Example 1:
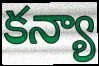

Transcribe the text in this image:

కన్యా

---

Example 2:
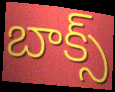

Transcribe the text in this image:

బాక్స్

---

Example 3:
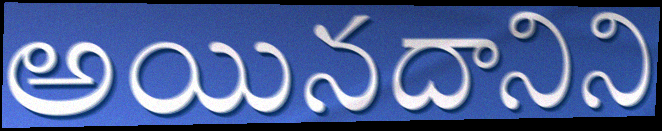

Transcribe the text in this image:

అయినదానిని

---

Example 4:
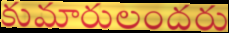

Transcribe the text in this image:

కుమారులందరు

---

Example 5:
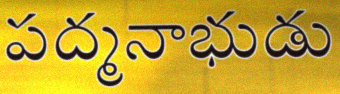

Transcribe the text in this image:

పద్మనాభుడు